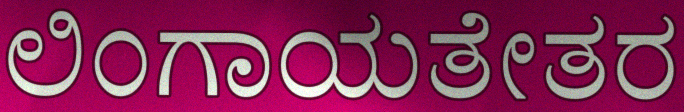
ಲಿಂಗಾಯತೇತರ